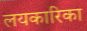
लयकारिका